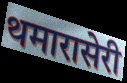
थमारासेरी